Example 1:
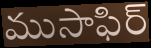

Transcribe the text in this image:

ముసాఫిర్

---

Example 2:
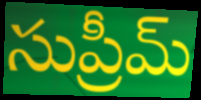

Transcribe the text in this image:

సుప్రీమ్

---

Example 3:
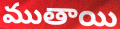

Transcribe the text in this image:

ముతాయి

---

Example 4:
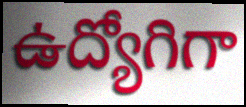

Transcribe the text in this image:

ఉద్యోగిగా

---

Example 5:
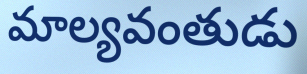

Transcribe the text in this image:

మాల్యవంతుడు